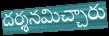
దర్శనమిచ్చారు